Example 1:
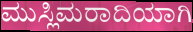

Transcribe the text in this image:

ಮುಸ್ಲಿಮರಾದಿಯಾಗಿ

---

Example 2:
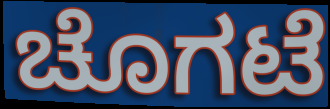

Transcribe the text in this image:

ಚೊಗಟೆ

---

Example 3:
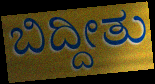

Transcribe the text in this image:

ಬಿದ್ದೀತು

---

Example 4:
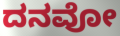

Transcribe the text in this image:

ದನವೋ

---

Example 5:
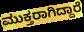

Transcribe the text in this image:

ಮುಕ್ತರಾಗಿದ್ದಾರೆ